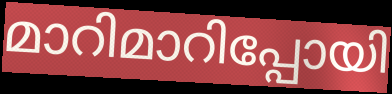
മാറിമാറിപ്പോയി